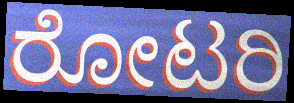
ರೋಟರಿ